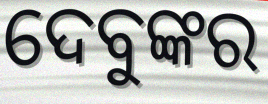
ଦେବୁଙ୍କର